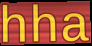
hha